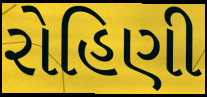
રોહિણી